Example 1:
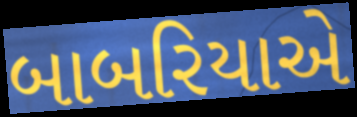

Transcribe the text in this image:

બાબરિયાએ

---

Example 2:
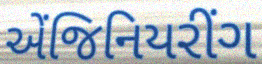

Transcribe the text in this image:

એંજિનિયરીંગ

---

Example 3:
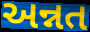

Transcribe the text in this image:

અન્નત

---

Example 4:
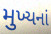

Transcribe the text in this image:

મુખ્યનાં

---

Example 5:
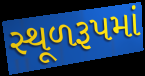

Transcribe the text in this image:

સ્થૂળરૂપમાં